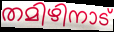
തമിഴിനാട്